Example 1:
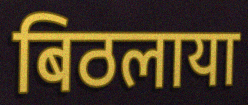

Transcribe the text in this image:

बिठलाया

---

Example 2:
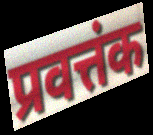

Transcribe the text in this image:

प्रवत्तंक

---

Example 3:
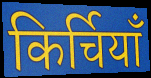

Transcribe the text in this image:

किर्चियाँ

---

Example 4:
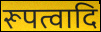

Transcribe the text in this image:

रूपत्वादि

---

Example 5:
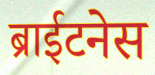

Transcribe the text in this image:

ब्राईटनेस